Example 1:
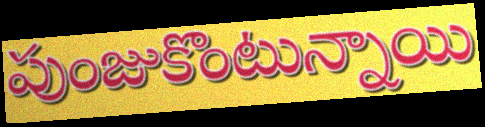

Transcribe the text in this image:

పుంజుకొంటున్నాయి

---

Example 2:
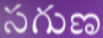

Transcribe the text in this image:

సగుణ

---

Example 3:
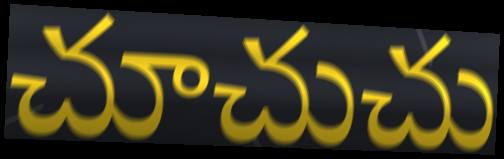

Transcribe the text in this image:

చూచుచు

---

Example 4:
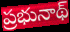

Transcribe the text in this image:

ప్రభునాథ్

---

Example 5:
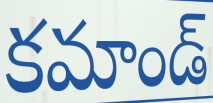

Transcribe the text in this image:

కమాండ్